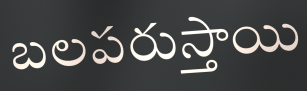
బలపరుస్తాయి